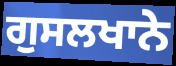
ਗੁਸਲਖਾਨੇ